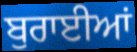
ਬੁਰਾਈਆਂ